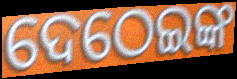
ଦେଠେଇଙ୍କ